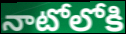
నాటోలోకి